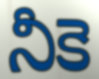
నీకె